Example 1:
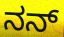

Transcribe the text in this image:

ನನ್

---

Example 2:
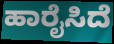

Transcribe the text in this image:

ಹಾರೈಸಿದೆ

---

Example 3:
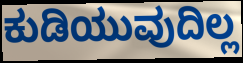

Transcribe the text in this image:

ಕುಡಿಯುವುದಿಲ್ಲ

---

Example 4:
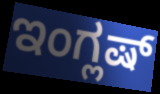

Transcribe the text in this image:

ಇಂಗ್ಲಷ್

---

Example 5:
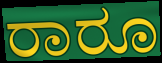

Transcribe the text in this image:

ರಾರೂ